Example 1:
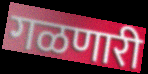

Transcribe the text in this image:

गळणारी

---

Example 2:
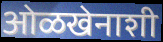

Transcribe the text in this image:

ओळखेनाशी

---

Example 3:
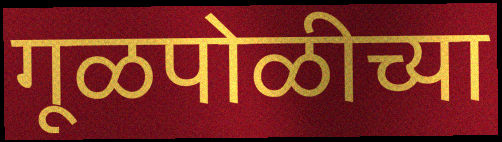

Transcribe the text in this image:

गूळपोळीच्या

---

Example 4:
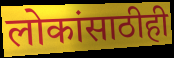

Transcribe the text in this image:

लोकांसाठीही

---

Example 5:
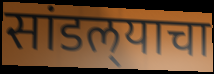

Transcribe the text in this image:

सांडल्याचा